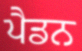
ਪੈਡਨ